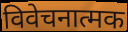
विवेचनात्मक